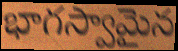
భాగస్వామైన